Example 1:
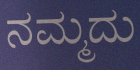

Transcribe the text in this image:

ನಮ್ಮದು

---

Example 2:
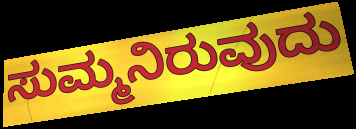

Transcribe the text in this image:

ಸುಮ್ಮನಿರುವುದು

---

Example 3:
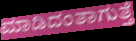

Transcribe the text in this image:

ಮಾಡಿದಂತಾಗುತ್ತೆ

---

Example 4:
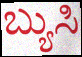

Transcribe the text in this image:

ಬ್ಯುಸಿ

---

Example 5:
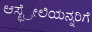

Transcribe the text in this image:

ಆಸ್ಟ್ರೇಲಿಯನ್ನರಿಗೆ